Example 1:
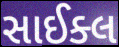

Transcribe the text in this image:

સાઈક્લ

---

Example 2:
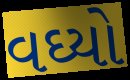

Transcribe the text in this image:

વઘ્યો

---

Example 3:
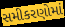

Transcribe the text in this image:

સમીકરણોમાં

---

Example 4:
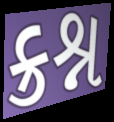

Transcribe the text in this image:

ક્રશ્ન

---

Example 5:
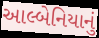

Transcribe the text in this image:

આલ્બેનિયાનું